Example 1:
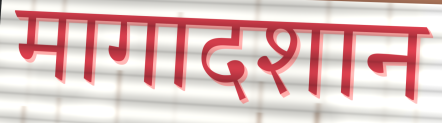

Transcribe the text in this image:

मागादशान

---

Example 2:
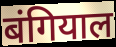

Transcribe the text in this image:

बंगियाल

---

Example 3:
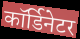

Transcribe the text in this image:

कॉर्डिनेटर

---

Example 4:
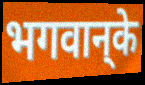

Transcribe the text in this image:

भगवान्‌के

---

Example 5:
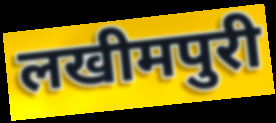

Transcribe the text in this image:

लखीमपुरी